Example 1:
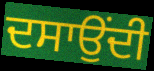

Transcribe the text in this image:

ਦਸਾਉਂਦੀ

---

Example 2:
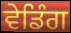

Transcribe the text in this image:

ਵੇਡਿੰਗ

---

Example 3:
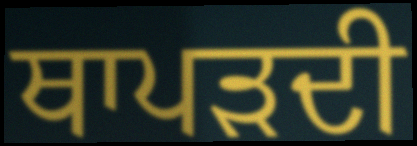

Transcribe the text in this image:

ਥਾਪੜਦੀ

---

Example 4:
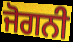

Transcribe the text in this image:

ਜੋਗਨੀ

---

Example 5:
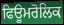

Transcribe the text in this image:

ਫਿਊਮਰੋਲਿਕ